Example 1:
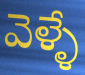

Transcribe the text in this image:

వెళ్ళే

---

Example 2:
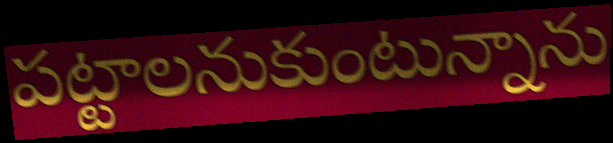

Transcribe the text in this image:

పట్టాలనుకుంటున్నాను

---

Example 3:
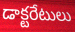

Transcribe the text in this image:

డాక్టరేటులు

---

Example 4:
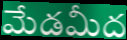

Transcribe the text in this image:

మేడమీద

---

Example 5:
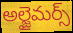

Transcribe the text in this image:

అల్జైమర్స్